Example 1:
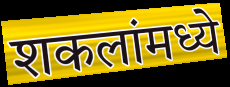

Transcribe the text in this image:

शकलांमध्ये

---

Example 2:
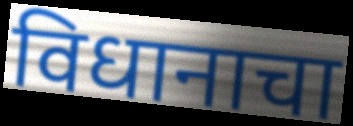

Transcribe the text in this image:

विधानाचा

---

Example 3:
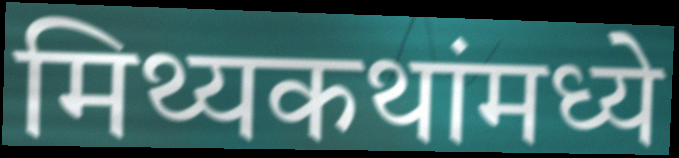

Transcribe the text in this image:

मिथ्यकथांमध्ये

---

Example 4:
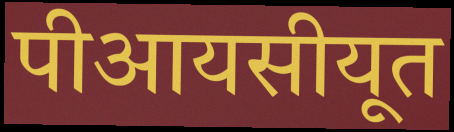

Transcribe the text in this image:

पीआयसीयूत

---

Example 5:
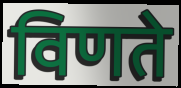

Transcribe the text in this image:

विणते